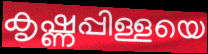
കൃഷ്ണപ്പിള്ളയെ